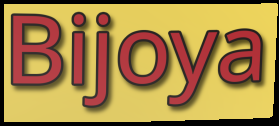
Bijoya